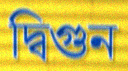
দ্বিগুন